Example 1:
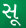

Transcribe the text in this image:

સૂ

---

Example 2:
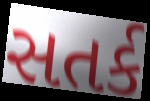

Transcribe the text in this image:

સતર્ક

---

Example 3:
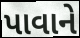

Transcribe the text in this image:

પાવાને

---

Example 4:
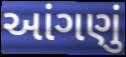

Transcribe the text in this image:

આંગણું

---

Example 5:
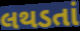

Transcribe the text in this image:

લથડતાં